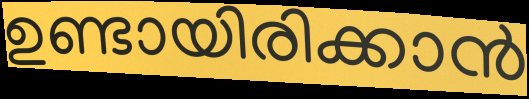
ഉണ്ടായിരിക്കാൻ